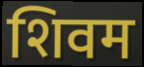
शिवम